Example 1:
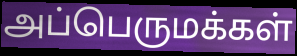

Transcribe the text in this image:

அப்பெருமக்கள்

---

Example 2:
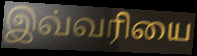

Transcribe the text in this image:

இவ்வரியை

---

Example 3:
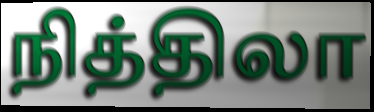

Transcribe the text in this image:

நித்திலா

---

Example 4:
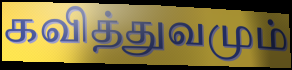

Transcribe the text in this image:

கவித்துவமும்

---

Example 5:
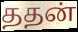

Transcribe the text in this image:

ததன்